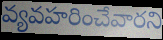
వ్యవహరించేవారని